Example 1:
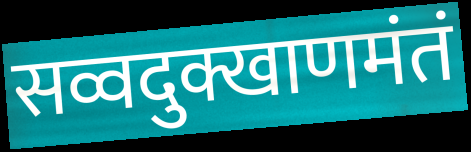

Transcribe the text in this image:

सव्वदुक्खाणमंतं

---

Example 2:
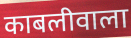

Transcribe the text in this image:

काबलीवाला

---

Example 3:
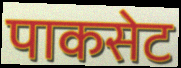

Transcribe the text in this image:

पाकसेट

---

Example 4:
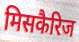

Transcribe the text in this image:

मिसकैरिज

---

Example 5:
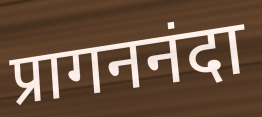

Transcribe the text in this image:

प्रागननंदा